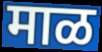
माळ